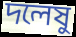
দলেষু